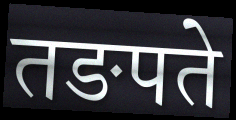
तङपते